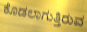
ಕೊಡಲಾಗುತ್ತಿರುವ